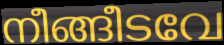
നീങ്ങീടവേ